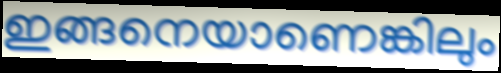
ഇങ്ങനെയാണെങ്കിലും